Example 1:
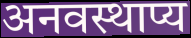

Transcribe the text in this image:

अनवस्थाप्य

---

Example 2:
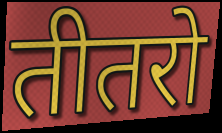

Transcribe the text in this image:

तीतरो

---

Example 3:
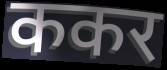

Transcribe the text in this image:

ककर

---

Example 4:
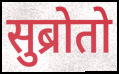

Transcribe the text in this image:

सुब्रोतो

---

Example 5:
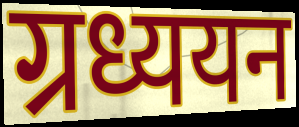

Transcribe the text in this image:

ग्रध्ययन